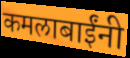
कमलाबाईंनी